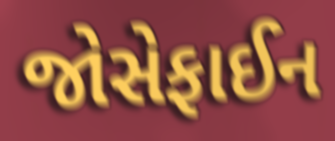
જોસેફાઈન